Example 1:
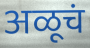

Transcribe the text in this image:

अळूचं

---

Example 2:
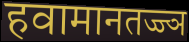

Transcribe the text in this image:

हवामानतज्ज्ञ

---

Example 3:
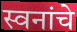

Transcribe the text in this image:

स्वनांचे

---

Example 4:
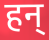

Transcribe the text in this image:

हन्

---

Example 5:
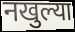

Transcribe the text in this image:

नखुल्या